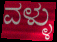
ವಳ್ಳು